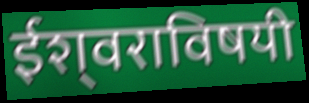
ईश्वराविषयी